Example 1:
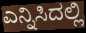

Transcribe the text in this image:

ಎನ್ನಿಸಿದಲ್ಲಿ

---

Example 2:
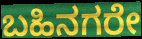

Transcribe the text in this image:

ಬಹಿನಗರೇ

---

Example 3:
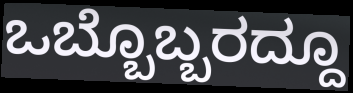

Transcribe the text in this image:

ಒಬ್ಬೊಬ್ಬರದ್ದೂ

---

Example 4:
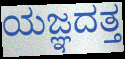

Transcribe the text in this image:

ಯಜ್ಞದತ್ತ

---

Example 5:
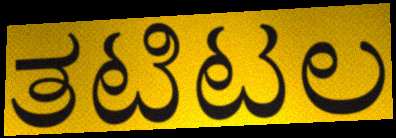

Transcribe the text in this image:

ತಟಿಟಲ